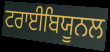
ਟਰਾਈਬਿਯੂਨਲ